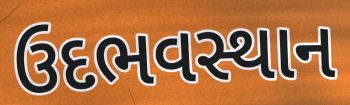
ઉદભવસ્થાન